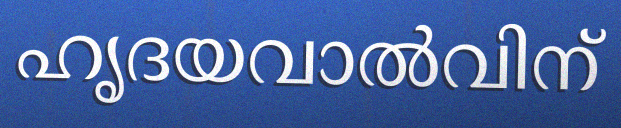
ഹൃദയവാൽവിന്